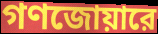
গণজোয়ারে